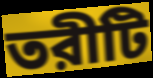
তরীটি